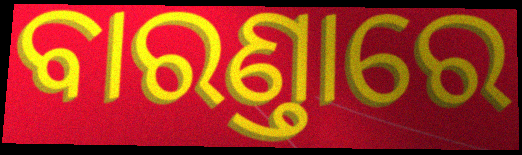
ବାରଣ୍ତାରେ